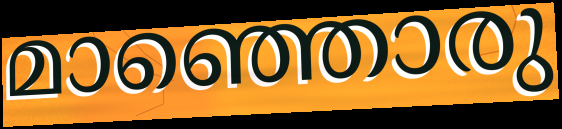
മാഞ്ഞൊരു